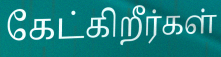
கேட்கிறீர்கள்